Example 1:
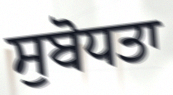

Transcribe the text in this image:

ਸੁਬੋਧਤਾ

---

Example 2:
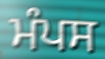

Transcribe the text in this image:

ਮੰਪਸ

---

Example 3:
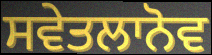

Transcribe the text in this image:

ਸਵੇਤਲਾਨੋਵ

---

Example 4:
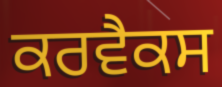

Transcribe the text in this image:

ਕਰਵੈਕਸ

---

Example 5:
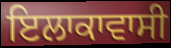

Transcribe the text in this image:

ਇਲਾਕਾਵਾਸੀ